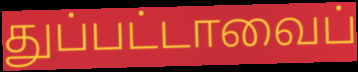
துப்பட்டாவைப்